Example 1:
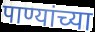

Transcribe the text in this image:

पाण्यांच्या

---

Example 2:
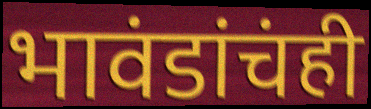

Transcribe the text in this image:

भावंडांचंही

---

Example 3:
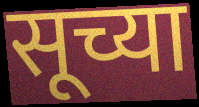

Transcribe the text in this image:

सूच्या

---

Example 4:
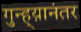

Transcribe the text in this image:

गुन्ह्य़ानंतर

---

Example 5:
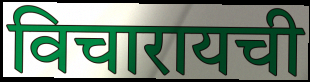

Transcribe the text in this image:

विचारायची